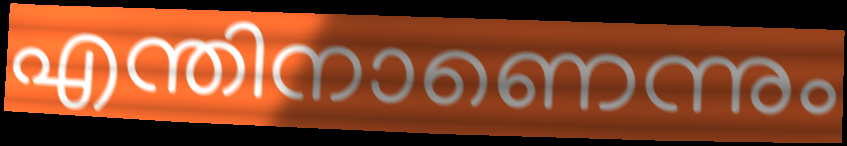
എന്തിനാണെന്നും